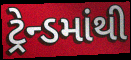
ટ્રેન્ડમાંથી